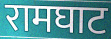
रामघाट